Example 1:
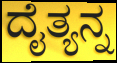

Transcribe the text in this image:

ದೈತ್ಯನ್ನ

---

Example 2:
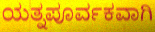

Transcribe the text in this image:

ಯತ್ನಪೂರ್ವಕವಾಗಿ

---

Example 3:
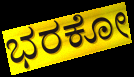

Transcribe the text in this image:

ಭರಕೋ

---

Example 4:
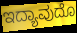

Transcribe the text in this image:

ಇದ್ಯಾವುದೊ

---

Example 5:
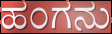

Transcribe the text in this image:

ಹಂಗನು